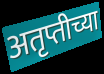
अतृप्तीच्या